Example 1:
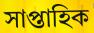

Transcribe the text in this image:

সাপ্তাহিক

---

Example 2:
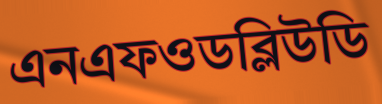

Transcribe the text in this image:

এনএফওডব্লিউডি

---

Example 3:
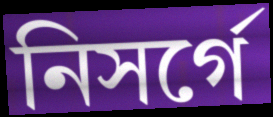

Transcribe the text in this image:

নিসর্গে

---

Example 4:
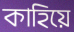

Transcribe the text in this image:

কাহিয়ে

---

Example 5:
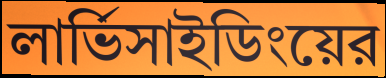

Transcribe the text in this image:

লার্ভিসাইডিংয়ের